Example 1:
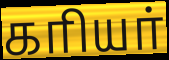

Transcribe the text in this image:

கரியர்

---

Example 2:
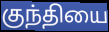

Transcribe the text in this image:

குந்தியை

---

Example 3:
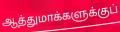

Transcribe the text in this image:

ஆத்துமாக்களுக்குப்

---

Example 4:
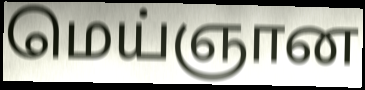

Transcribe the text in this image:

மெய்ஞான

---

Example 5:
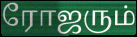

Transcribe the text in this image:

ரோஜரும்